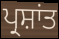
ਪ੍ਰਸ਼ਾਂਤ